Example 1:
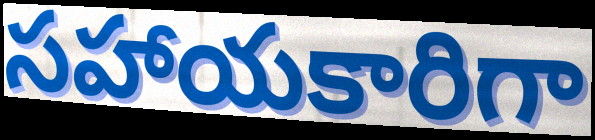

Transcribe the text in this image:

సహాయకారిగా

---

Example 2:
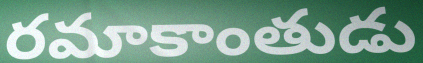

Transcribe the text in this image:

రమాకాంతుడు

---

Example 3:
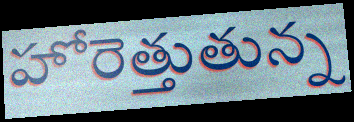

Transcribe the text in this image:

హోరెత్తుతున్న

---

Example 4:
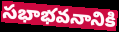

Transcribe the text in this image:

సభాభవనానికి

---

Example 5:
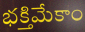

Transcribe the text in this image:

భక్తిమేకాం